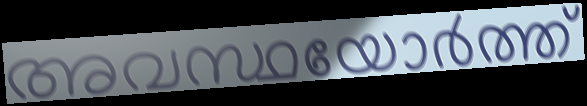
അവസ്ഥയോർത്ത്